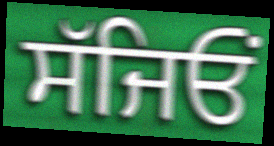
ਸੱਜਿਓਂ